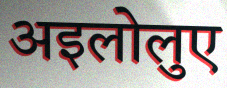
अइलोलुए